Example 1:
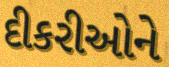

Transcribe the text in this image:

દીકરીઓને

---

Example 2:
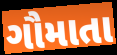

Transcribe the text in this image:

ગૌમાતા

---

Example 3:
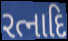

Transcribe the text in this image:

રત્નાદિ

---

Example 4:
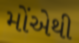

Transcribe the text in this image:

મોંએથી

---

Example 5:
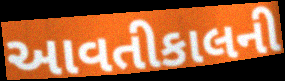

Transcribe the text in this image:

આવતીકાલની